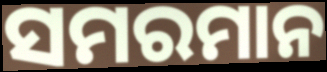
ସମରମାନ